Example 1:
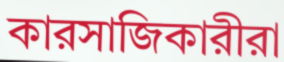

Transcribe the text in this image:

কারসাজিকারীরা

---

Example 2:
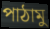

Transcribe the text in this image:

পাঠামু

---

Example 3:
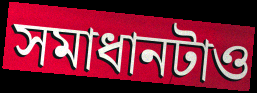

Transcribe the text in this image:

সমাধানটাও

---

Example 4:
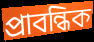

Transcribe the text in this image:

প্রাবন্ধিক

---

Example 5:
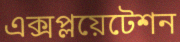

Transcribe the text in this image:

এক্সপ্লয়েটেশন